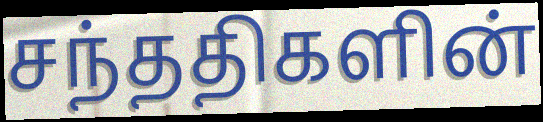
சந்ததிகளின்